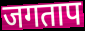
जगताप